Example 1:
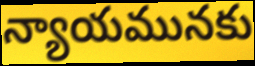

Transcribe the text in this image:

న్యాయమునకు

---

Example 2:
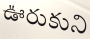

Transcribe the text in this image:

ఊరుకుని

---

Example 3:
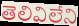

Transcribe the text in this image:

తెలివిలేని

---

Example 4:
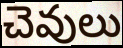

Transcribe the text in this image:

చెవులు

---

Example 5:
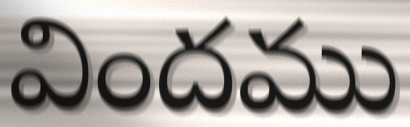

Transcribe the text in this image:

విందము